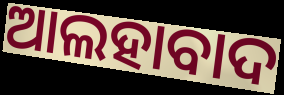
ଆଲହାବାଦ